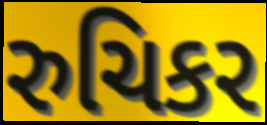
રુચિકર